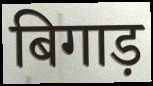
बिगाड़